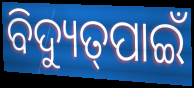
ବିଦ୍ୟୁତ୍‌ପାଇଁ